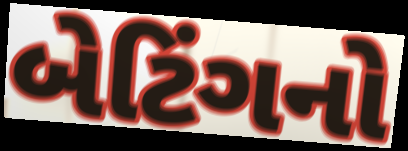
બેટિંગનો